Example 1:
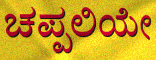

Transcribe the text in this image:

ಚಪ್ಪಲಿಯೇ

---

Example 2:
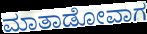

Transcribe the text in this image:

ಮಾತಾಡೋವಾಗ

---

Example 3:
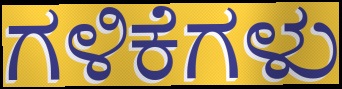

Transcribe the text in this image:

ಗಳಿಕೆಗಳು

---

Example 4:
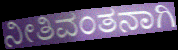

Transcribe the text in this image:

ನೀತಿವಂತನಾಗಿ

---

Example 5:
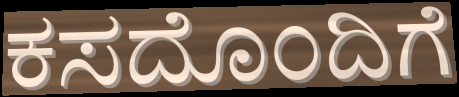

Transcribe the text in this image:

ಕಸದೊಂದಿಗೆ